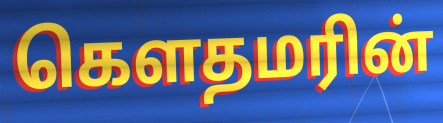
கௌதமரின்